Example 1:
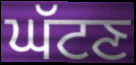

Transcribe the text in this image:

ਘੱਟਣ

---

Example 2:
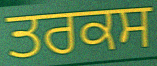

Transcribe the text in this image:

ਤਰਕਸ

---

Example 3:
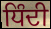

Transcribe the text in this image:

ਧਿੰਦੀ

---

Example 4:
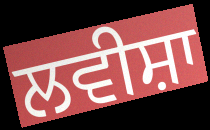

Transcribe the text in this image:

ਲਵੀਸ਼ਾ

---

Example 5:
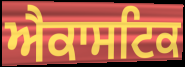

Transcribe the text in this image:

ਐਕਾਸਟਿਕ